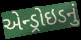
એન્ડ્રોઇડનું